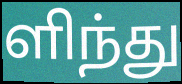
ளிந்து